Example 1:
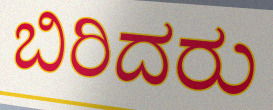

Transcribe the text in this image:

ಬಿರಿದರು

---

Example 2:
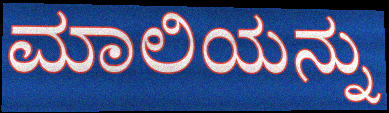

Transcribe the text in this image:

ಮಾಲಿಯನ್ನು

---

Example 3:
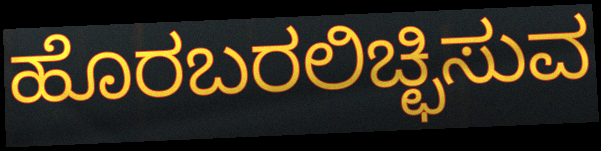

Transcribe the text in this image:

ಹೊರಬರಲಿಚ್ಛಿಸುವ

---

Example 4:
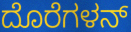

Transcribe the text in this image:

ದೊರೆಗಳನ್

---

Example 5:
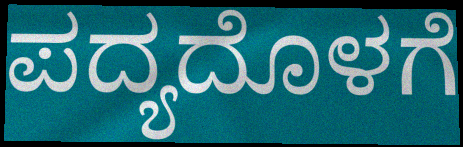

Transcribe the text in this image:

ಪದ್ಯದೊಳಗೆ